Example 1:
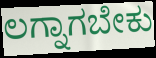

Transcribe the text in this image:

ಲಗ್ನಾಗಬೇಕು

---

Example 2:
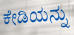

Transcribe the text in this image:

ಕೇಡಿಯನ್ನು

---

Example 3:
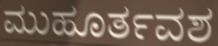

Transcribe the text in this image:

ಮುಹೂರ್ತವಶ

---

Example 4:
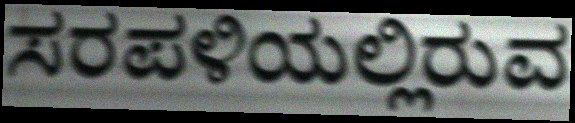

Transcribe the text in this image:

ಸರಪಳಿಯಲ್ಲಿರುವ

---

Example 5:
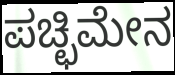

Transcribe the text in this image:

ಪಚ್ಛಿಮೇನ